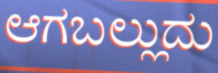
ಆಗಬಲ್ಲುದು